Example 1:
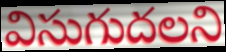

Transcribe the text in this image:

విసుగుదలని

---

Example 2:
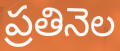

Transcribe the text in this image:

ప్రతినెల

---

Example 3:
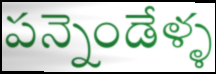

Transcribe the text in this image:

పన్నెండేళ్ళ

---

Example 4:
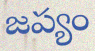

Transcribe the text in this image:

జప్యం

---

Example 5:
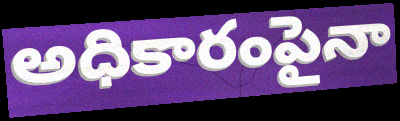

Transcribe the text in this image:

అధికారంపైనా